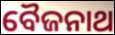
ବୈଜନାଥ